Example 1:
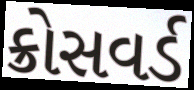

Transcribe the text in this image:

ક્રોસવર્ડ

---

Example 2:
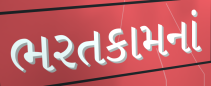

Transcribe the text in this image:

ભરતકામનાં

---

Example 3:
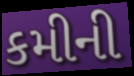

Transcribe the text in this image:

કમીની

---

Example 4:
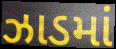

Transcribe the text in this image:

ઝાડમાં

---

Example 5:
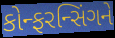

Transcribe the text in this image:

કોન્ફરન્સિંગને